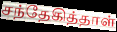
சந்தேகித்தாள்